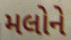
મલોને